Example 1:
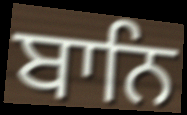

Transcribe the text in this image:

ਬਾਨਿ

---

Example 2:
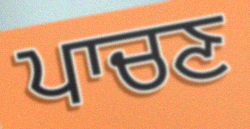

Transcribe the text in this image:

ਪਾਚਣ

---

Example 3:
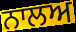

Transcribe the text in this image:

ਨਾਲਅ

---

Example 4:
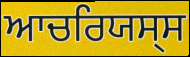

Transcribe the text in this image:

ਆਚਰਿਯਸ੍ਸ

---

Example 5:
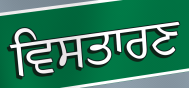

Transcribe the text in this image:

ਵਿਸਤਾਰਣ